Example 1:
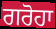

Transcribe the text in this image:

ਗਰੋਹਾ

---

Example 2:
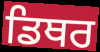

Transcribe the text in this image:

ਡਿਥਰ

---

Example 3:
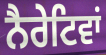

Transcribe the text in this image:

ਨੈਰੇਟਿਵਾਂ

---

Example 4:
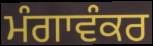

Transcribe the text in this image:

ਮੰਗਾਵੰਕਰ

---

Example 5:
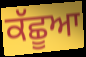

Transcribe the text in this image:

ਕੱਛੂਆ